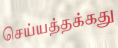
செய்யத்தக்கது